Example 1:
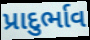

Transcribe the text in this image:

પ્રાદુર્ભાવ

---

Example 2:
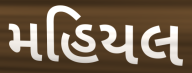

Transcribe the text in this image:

મહિયલ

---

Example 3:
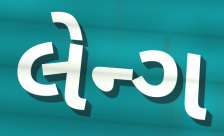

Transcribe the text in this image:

લેન્ગ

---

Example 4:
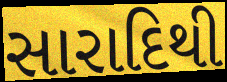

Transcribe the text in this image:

સારાદિથી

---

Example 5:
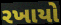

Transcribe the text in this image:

રખાયો